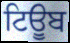
ਟਿਊੂਬ